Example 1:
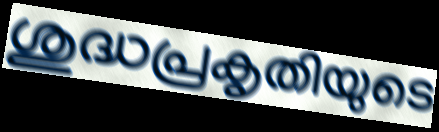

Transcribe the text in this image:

ശുദ്ധപ്രകൃതിയുടെ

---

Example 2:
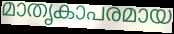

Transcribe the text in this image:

മാതൃകാപരമായ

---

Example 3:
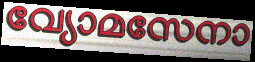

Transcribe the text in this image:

വ്യോമസേനാ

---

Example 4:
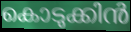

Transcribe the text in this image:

കൊടുക്കിൻ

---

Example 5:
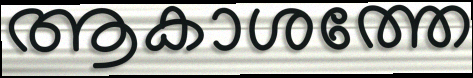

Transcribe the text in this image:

ആകാശത്തേ